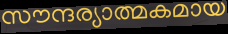
സൗന്ദര്യാത്മകമായ